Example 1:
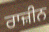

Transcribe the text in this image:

ਰਾਜ਼ੀਨ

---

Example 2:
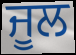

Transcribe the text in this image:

ਜੂਲ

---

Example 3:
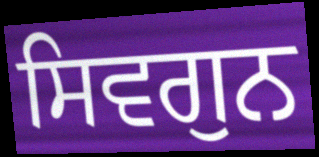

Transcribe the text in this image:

ਸਿਵਗੁਨ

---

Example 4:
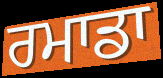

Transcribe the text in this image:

ਰਮਾਡਾ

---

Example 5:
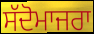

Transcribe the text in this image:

ਸੱਦੋਮਾਜਰਾ